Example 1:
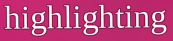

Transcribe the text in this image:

highlighting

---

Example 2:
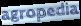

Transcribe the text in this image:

agropedia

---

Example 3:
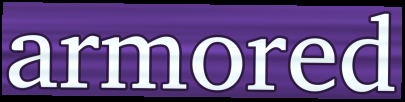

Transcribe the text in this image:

armored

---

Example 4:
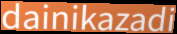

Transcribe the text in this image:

dainikazadi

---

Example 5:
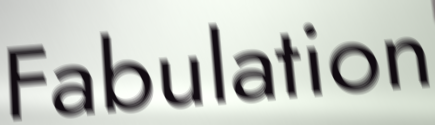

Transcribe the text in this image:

Fabulation